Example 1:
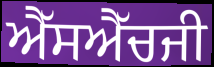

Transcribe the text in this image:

ਐੱਸਐੱਚਜੀ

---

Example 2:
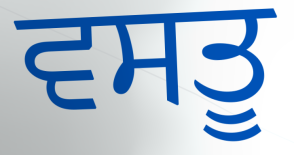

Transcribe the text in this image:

ਵਸਤੂ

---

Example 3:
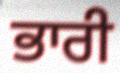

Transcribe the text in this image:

ਭਾਰੀ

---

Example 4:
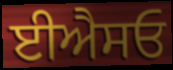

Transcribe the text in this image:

ਈਐਸਓ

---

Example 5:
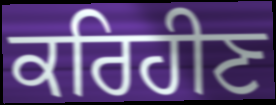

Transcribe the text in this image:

ਕਰਿਹੀਣ